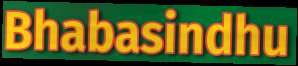
Bhabasindhu